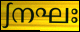
ഽനഘഃ